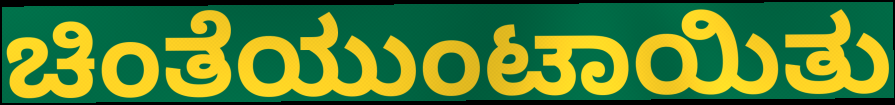
ಚಿಂತೆಯುಂಟಾಯಿತು